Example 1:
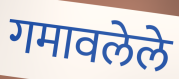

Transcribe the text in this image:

गमावलेले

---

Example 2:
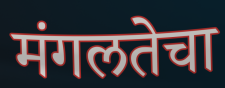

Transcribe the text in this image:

मंगलतेचा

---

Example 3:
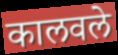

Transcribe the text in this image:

कालवले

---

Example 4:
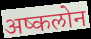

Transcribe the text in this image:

अष्कलोन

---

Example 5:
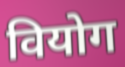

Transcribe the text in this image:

वियोग